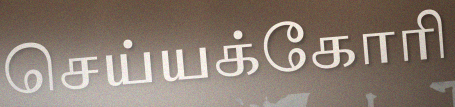
செய்யக்கோரி